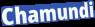
Chamundi